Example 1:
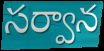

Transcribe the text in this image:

సర్వాన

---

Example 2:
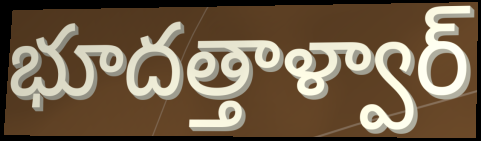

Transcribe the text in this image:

భూదత్తాళ్వార్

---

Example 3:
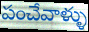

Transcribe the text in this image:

పంచేవాళ్ళు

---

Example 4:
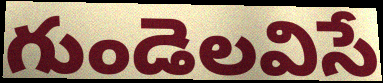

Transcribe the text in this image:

గుండెలవిసే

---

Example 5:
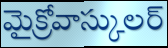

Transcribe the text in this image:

మైక్రోవాస్కులర్